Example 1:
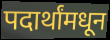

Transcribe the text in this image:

पदार्थांमधून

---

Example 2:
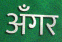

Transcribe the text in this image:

अँगर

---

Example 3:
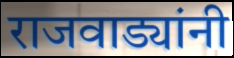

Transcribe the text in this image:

राजवाड्यांनी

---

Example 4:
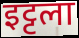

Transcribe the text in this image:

इट्टला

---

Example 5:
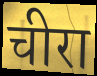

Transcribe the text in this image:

चीरा